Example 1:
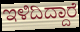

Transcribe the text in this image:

ಇಳಿದಿದ್ದಾರೆ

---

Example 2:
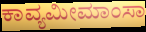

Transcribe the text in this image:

ಕಾವ್ಯಮೀಮಾಂಸಾ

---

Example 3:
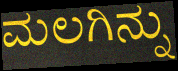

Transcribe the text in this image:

ಮಲಗಿನ್ನು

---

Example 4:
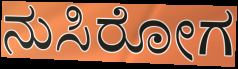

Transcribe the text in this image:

ನುಸಿರೋಗ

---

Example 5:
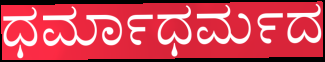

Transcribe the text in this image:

ಧರ್ಮಾಧರ್ಮದ